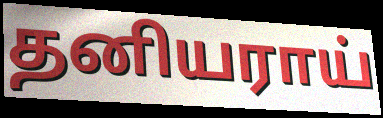
தனியராய்